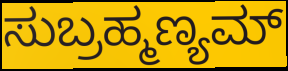
ಸುಬ್ರಹ್ಮಣ್ಯಮ್